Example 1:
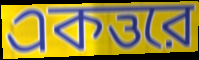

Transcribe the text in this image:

একত্তরে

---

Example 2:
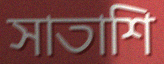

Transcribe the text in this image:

সাতাশি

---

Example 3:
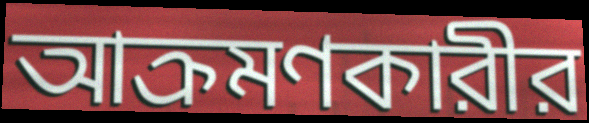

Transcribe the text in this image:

আক্রমণকারীর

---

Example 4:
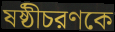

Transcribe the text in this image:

ষষ্ঠীচরণকে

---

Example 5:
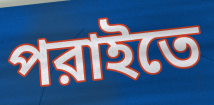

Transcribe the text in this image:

পরাইতে